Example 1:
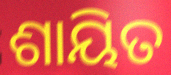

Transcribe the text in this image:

ଶାୟିତ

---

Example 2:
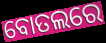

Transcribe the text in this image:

ବୋତଲରେ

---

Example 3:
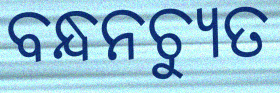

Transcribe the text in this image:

ବନ୍ଧନଚ୍ୟୁତ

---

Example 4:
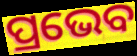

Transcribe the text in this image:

ପ୍ରଭେବ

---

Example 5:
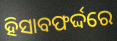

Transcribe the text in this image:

ହିସାବଫର୍ଦ୍ଦରେ